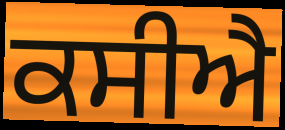
ਕਸੀਐ